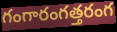
గంగారంగత్తరంగ